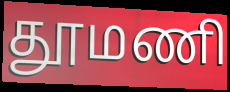
தூமணி